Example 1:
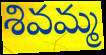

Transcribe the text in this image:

శివమ్మ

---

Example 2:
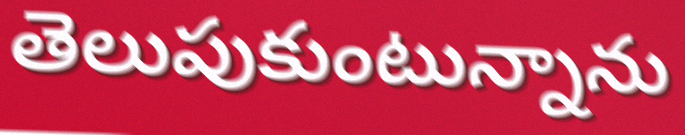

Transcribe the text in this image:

తెలుపుకుంటున్నాను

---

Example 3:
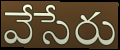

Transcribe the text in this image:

వేసేరు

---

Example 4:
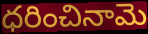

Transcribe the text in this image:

ధరించినామె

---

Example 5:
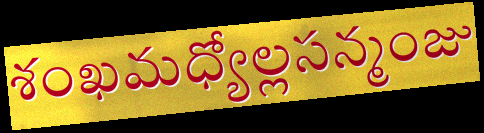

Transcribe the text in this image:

శంఖమధ్యోల్లసన్మంజు